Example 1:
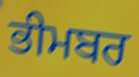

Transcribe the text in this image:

ਭੀਮਬਰ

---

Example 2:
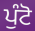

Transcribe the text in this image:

ਪੁੰਟੋ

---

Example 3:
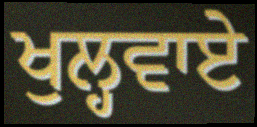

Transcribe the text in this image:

ਖੁਲ੍ਹਵਾਏ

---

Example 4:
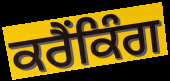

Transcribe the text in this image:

ਕਰੈਂਕਿੰਗ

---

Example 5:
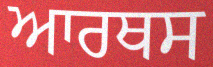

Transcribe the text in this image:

ਆਰਥਸ